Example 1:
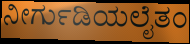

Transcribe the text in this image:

ನೀರ್ಗುಡಿಯಲೈತಂ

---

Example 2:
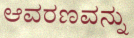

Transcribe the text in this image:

ಆವರಣವನ್ನು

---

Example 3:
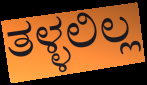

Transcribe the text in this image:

ತಳ್ಳಲಿಲ್ಲ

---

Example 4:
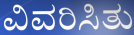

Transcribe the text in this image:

ವಿವರಿಸಿತು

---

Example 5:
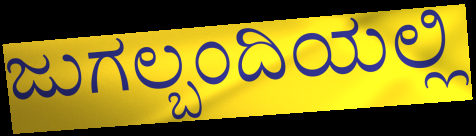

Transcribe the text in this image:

ಜುಗಲ್ಬಂದಿಯಲ್ಲಿ